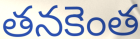
తనకెంత